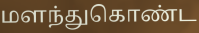
மளந்துகொண்ட